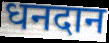
धनदान